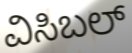
ವಿಸಿಬಲ್